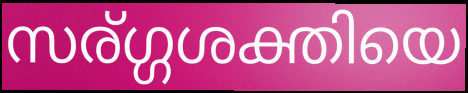
സര്ഗ്ഗശക്തിയെ